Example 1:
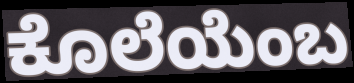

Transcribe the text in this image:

ಕೊಲೆಯೆಂಬ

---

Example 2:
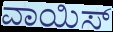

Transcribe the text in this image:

ವಾಯಿಸ್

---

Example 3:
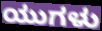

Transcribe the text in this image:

ಯುಗಳು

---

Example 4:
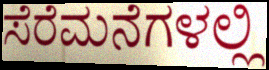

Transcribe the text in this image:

ಸೆರೆಮನೆಗಳಲ್ಲಿ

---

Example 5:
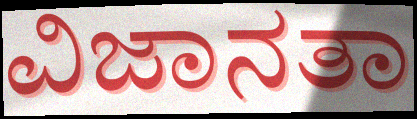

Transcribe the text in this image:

ವಿಜಾನತಾ